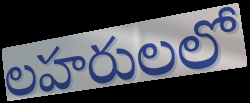
లహరులలో